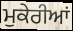
ਮੁਕੇਰੀਆਂ